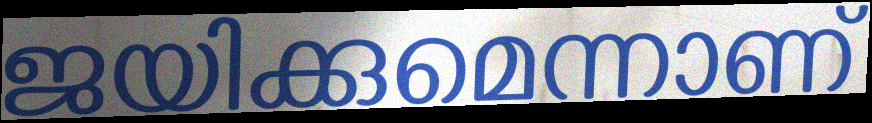
ജയിക്കുമെന്നാണ്